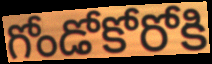
గోండోకోరోకి